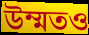
উম্মতও